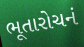
ભૂતારોચનં